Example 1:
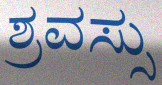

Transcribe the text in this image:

ಶ್ರವಸ್ಸು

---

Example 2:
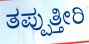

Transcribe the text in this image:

ತಪ್ಪುತ್ತೀರಿ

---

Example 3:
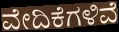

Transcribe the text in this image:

ವೇದಿಕೆಗಳಿವೆ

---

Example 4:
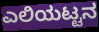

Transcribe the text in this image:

ಎಲಿಯಟ್ಟನ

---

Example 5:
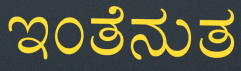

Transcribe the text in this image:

ಇಂತೆನುತ